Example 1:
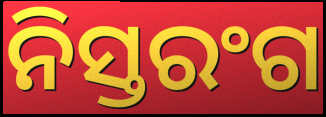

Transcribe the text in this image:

ନିସ୍ତରଂଗ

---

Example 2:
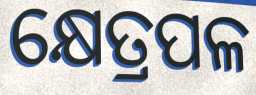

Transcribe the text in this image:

କ୍ଷେତ୍ରପଳ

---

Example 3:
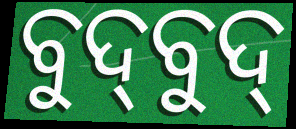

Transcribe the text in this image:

ବୁଦ୍‍ବୁଦ୍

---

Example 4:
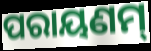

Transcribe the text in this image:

ପରାୟଣମ୍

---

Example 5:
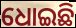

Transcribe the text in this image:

ଧୋଇଛି